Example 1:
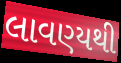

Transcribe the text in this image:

લાવણ્યથી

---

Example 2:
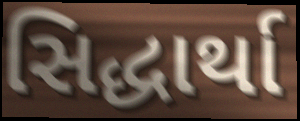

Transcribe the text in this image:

સિદ્ધાર્થા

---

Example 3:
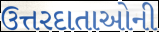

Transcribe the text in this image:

ઉત્તરદાતાઓની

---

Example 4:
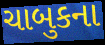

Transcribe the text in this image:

ચાબુકના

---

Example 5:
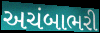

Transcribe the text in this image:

અચંબાભરી